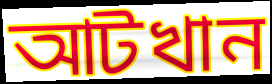
আটখান